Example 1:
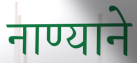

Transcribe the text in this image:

नाण्याने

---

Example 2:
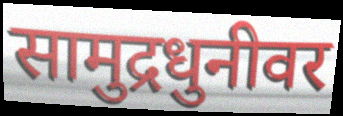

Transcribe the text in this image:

सामुद्रधुनीवर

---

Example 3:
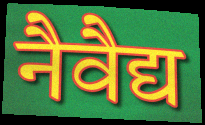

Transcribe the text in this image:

नैवैद्य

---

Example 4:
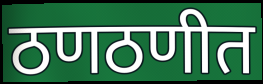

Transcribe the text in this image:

ठणठणीत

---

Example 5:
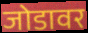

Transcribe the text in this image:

जोडावर